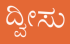
ದ್ವೀಸು